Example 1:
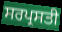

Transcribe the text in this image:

ਸਰਪ੍ਰਸਤੀ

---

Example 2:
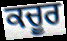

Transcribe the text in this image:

ਕਚੂਰ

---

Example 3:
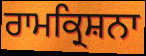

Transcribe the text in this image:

ਰਾਮਕ੍ਰਿਸ਼ਨਾ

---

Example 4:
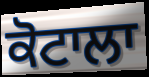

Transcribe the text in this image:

ਕੋਟਾਲਾ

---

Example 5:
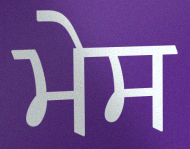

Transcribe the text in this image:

ਮੇਸ